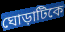
ঘোড়াটিকে